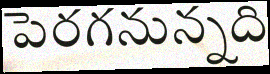
పెరగనున్నది